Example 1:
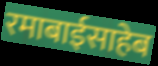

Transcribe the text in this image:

रमाबाईसाहेब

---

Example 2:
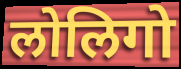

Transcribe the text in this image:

लोलिगो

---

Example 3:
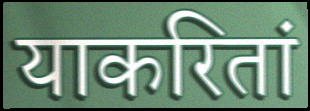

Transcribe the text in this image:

याकरितां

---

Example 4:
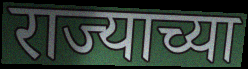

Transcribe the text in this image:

राज्याच्या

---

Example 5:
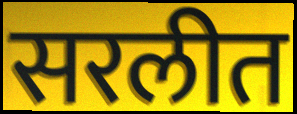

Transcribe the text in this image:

सरलीत